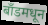
बाँडमधून